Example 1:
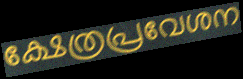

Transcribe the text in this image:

ക്ഷേത്രപ്രവേശന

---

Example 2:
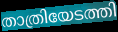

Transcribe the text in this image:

താത്രിയേടത്തി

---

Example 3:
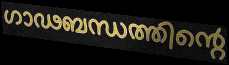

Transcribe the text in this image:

ഗാഢബന്ധത്തിന്റെ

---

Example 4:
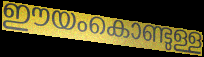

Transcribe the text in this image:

ഈയംകൊണ്ടുള്ള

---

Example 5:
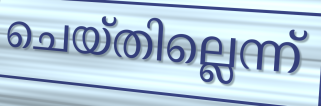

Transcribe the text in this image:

ചെയ്തില്ലെന്ന്